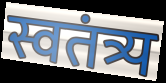
स्वतंत्र्य